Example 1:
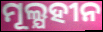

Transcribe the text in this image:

ମୂଲ୍ଯହୀନ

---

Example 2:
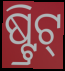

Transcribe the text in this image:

ଷ୍ଟ୍ରିଟ୍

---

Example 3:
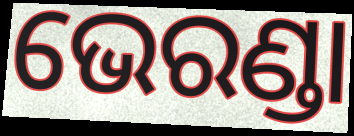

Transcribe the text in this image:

ଭେରଣ୍ଡା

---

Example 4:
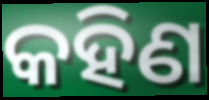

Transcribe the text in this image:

କହିଣ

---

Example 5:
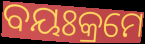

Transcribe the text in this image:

ବୟଃକ୍ରମେ